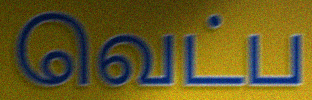
வெட்ப